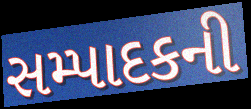
સમ્પાદકની